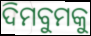
ଦିମବୁମକୁ